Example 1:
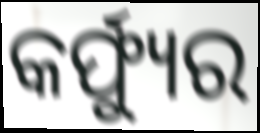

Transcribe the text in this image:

କର୍ଫ୍ୟୁର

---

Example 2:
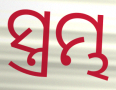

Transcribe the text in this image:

ସ୍ତ୍ରମ୍ଭ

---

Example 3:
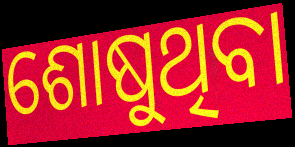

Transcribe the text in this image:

ଶୋଷୁଥିବା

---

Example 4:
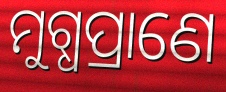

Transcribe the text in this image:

ମୁଗ୍ଧପ୍ରାଣେ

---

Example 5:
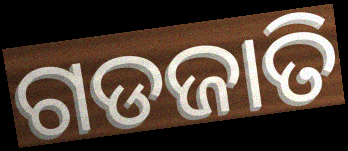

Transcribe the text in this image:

ଗଡଜାତି